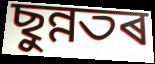
ছুন্নতৰ